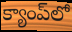
క్యాంప్‌లో